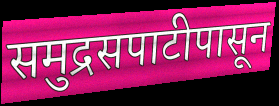
समुद्रसपाटीपासून